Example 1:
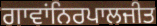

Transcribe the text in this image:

ਗਾਵਾਂਨਿਰਪਾਲਜੀਤ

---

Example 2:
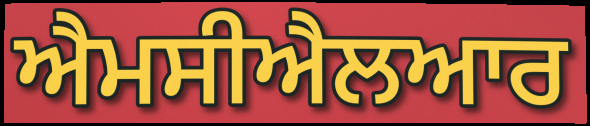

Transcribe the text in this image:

ਐਮਸੀਐਲਆਰ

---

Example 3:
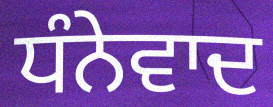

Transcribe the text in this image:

ਧੰਨੇਵਾਦ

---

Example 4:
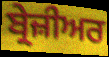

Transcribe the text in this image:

ਬ੍ਰੇਜ਼ੀਅਰ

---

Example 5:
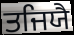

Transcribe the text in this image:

ਤਜਿਯੈ